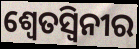
ଶ୍ୱେତସ୍ୱିନୀର